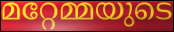
മറ്റേമ്മയുടെ